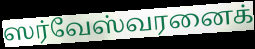
ஸர்வேஸ்வரனைக்